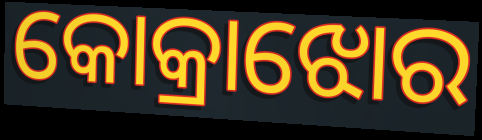
କୋକ୍ରାଝୋର